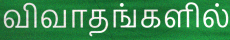
விவாதங்களில்